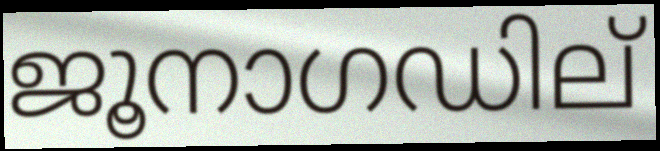
ജൂനാഗഡില്